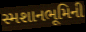
સ્મશાનભૂમિની